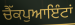
ਚੈੱਕਪੁਆਇੰਟਾਂ